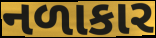
નળાકાર